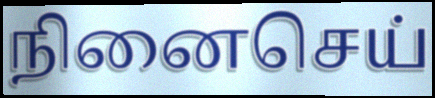
நினைசெய்